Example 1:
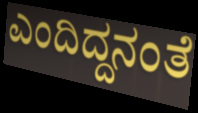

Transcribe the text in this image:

ಎಂದಿದ್ದನಂತೆ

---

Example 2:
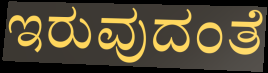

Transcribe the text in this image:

ಇರುವುದಂತೆ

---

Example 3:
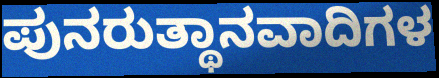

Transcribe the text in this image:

ಪುನರುತ್ಥಾನವಾದಿಗಳ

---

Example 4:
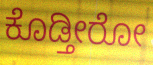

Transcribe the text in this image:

ಕೊಡ್ತೀರೋ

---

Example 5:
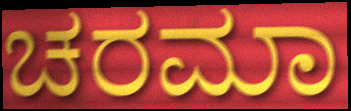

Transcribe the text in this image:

ಚರಮಾ